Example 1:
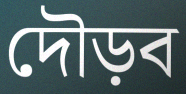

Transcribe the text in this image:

দৌড়ব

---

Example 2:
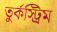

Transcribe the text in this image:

তুর্কস্ট্রিম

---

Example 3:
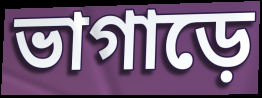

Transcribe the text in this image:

ভাগাড়ে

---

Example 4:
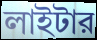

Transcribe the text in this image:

লাইটার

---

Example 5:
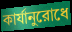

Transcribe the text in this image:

কার্যানুরোধে